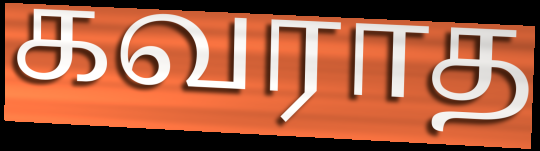
கவராத